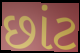
છાંટ